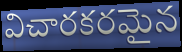
విచారకరమైన